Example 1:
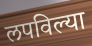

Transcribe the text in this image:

लपविल्या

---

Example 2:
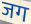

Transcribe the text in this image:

जग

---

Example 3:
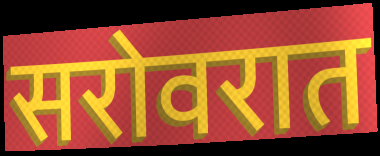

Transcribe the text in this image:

सरोवरात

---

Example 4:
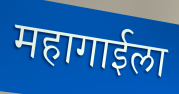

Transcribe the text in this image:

महागाईला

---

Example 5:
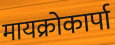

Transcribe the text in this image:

मायक्रोकार्पा